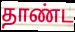
தாண்ட